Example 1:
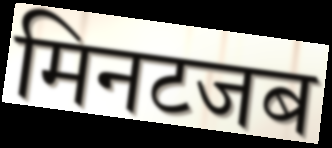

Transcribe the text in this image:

मिनटजब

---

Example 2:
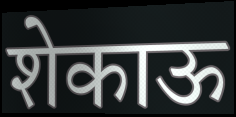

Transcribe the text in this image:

शेकाऊ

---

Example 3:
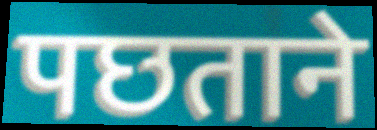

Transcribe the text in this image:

पछताने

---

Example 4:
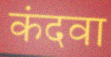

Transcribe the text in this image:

कंदवा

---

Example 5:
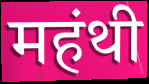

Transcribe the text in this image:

महंथी